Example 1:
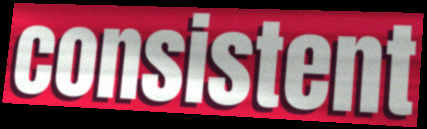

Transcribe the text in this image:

consistent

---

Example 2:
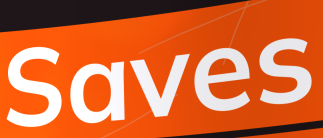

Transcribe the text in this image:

Saves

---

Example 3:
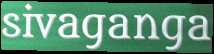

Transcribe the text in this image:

sivaganga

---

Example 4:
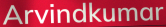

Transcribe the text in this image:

Arvindkumar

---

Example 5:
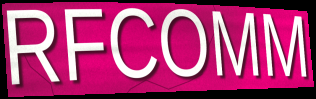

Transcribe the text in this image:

RFCOMM